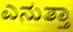
ಎನುತ್ತಾ